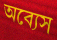
অব্যেস